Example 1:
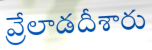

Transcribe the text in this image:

వ్రేలాడదీశారు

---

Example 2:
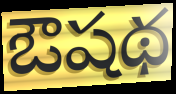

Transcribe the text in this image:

ఔషథ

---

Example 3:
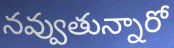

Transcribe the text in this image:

నవ్వుతున్నారో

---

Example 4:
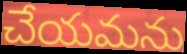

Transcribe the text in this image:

చేయమను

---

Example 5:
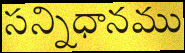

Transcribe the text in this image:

సన్నిధానము